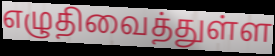
எழுதிவைத்துள்ள